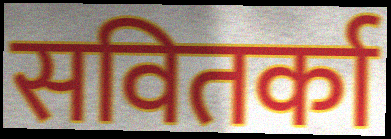
सवितर्का